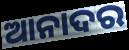
ଆନାଦର